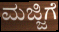
ಮಜ್ಜಿಗೆ